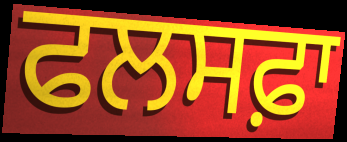
ਫਲਸਫ਼ਾ